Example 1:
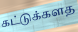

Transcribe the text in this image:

கட்டுக்களத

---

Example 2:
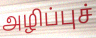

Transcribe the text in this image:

அழிப்புச்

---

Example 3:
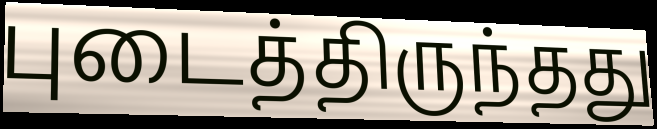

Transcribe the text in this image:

புடைத்திருந்தது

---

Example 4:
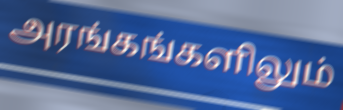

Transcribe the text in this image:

அரங்கங்களிலும்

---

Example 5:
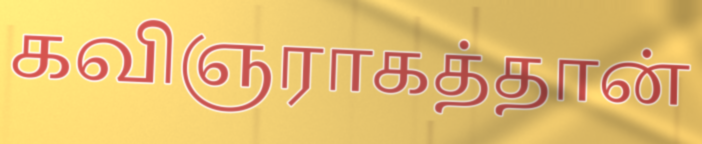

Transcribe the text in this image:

கவிஞராகத்தான்